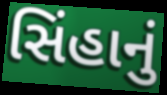
સિંહાનું